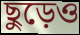
ছুড়েও